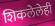
शिकलेलेही